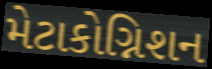
મેટાકોગ્નિશન